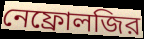
নেফ্রোলজির